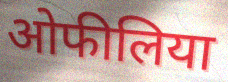
ओफीलिया